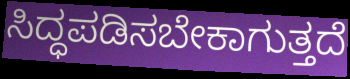
ಸಿದ್ಧಪಡಿಸಬೇಕಾಗುತ್ತದೆ